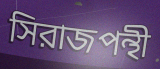
সিরাজপন্থী